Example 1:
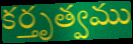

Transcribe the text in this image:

కర్తృత్వము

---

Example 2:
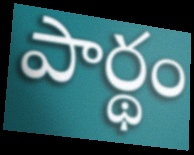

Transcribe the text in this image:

పార్థం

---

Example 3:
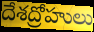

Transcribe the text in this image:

దేశద్రోహులు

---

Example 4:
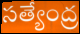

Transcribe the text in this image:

సత్యేంద్ర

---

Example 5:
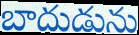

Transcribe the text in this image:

బాదుడును